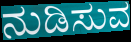
ನುಡಿಸುವ